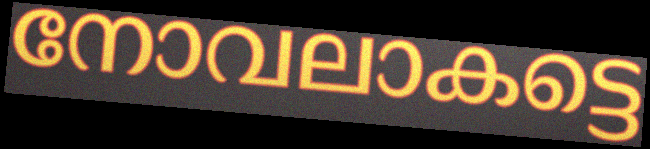
നോവലാകട്ടെ